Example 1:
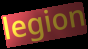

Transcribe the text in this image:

legion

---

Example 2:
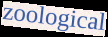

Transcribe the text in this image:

zoological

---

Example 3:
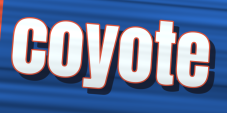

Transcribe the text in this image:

coyote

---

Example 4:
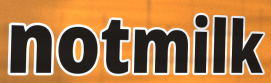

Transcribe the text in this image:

notmilk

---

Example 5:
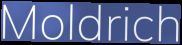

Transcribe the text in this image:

Moldrich